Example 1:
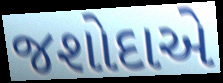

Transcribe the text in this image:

જશોદાએ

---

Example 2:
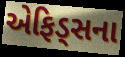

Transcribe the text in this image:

એફિડ્સના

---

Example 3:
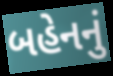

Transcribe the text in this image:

બહેનનું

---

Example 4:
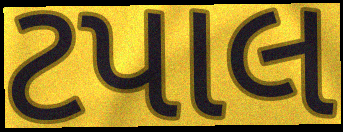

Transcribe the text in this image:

ટપાલ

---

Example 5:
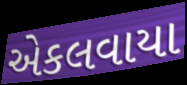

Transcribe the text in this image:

એકલવાયા